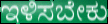
ಇಳಿಸಬೇಕು